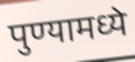
पुण्यामध्ये